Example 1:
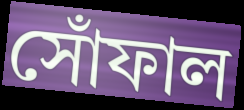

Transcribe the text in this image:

সোঁফাল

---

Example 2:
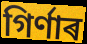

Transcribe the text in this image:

গিৰ্ণাৰ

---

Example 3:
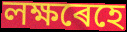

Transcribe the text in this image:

লক্ষৰেহে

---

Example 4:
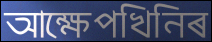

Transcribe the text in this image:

আক্ষেপখিনিৰ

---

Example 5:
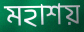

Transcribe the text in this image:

মহাশয়